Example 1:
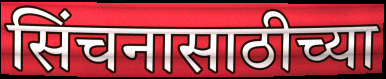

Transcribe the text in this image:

सिंचनासाठीच्या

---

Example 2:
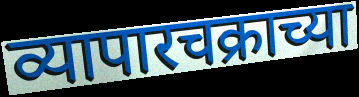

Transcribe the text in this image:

व्यापारचक्राच्या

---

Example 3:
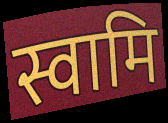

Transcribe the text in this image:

स्वामि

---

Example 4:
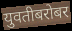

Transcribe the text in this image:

युवतीबरोबर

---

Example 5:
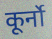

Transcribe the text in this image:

कूर्नो